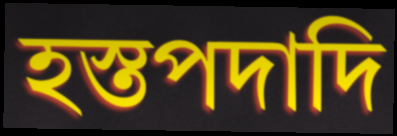
হস্তপদাদি